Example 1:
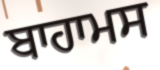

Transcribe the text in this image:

ਬਾਹਾਮਸ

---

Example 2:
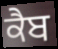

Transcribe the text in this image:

ਕੈਬ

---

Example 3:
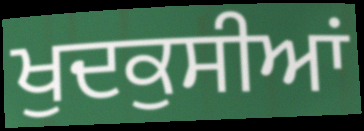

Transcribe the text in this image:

ਖੁਦਕੁਸੀਆਂ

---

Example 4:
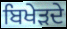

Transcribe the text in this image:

ਬਿਖੇੜਦੇ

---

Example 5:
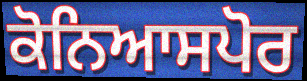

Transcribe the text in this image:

ਕੋਨਿਆਸਪੋਰ